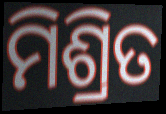
ମିଶ୍ରିତ